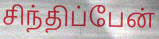
சிந்திப்பேன்